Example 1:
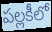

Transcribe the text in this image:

పల్లకీలో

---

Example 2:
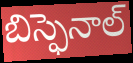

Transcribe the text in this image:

బిస్ఫెనాల్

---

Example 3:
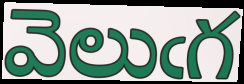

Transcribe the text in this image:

వెలుఁగ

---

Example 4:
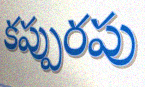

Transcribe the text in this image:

కప్పురపు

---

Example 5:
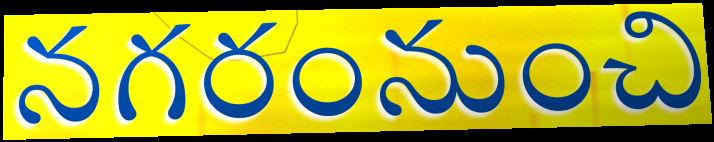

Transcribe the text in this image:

నగరంనుంచి